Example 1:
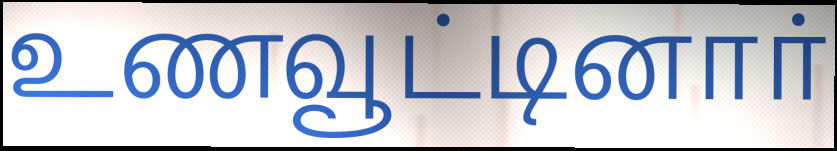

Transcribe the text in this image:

உணவூட்டினார்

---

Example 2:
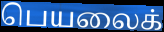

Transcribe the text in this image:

பெயலைக்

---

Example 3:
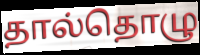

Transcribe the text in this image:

தால்தொழு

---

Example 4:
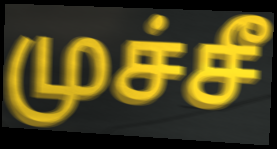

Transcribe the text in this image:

முச்சீ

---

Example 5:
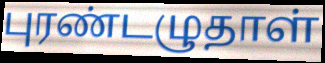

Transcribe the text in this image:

புரண்டழுதாள்